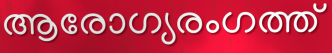
ആരോഗ്യരംഗത്ത്